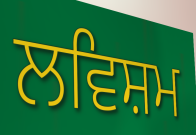
ਲਵਿਸ਼ਮ